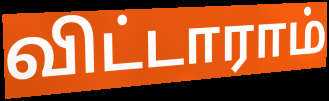
விட்டாராம்